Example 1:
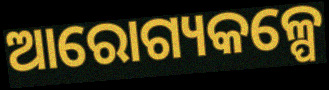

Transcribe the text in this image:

ଆରୋଗ୍ୟକଳ୍ପେ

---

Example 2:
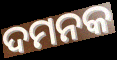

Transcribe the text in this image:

ଦମନକ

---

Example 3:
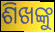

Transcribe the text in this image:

ଶିଖଙ୍କୁ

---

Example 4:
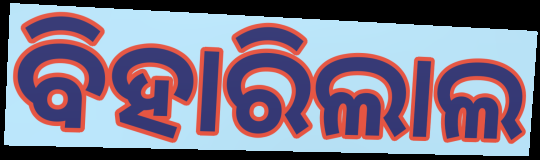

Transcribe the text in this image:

ବିହାରିଲାଲ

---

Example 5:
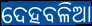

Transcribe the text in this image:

ଦେହବଳିଆ